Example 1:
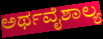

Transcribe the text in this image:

ಅರ್ಥವೈಶಾಲ್ಯ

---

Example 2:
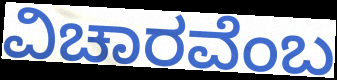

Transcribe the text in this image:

ವಿಚಾರವೆಂಬ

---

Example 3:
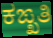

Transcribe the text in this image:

ಕಙ್ಖತಿ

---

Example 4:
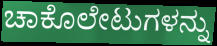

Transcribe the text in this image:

ಚಾಕೊಲೇಟುಗಳನ್ನು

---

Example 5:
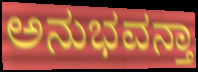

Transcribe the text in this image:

ಅನುಭವನ್ತಾ